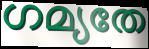
ഗമ്യതേ